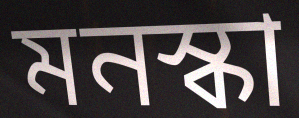
মনস্কা